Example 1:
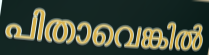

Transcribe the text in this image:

പിതാവെങ്കിൽ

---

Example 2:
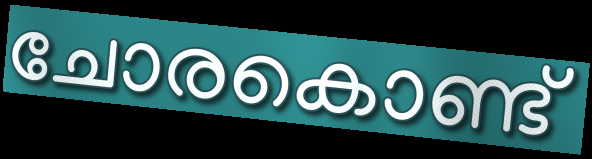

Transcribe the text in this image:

ചോരകൊണ്ട്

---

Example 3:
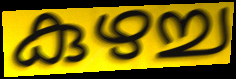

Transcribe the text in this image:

കുഴച്ച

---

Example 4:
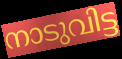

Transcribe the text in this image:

നാടുവിട്ട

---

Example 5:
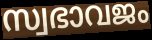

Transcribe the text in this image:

സ്വഭാവജം